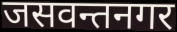
जसवन्तनगर